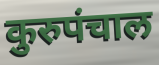
कुरुपंचाल